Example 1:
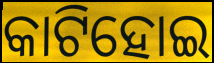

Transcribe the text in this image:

କାଟିହୋଇ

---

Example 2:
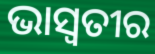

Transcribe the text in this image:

ଭାସ୍ୱତୀର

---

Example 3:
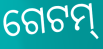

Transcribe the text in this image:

ଗେଟମ୍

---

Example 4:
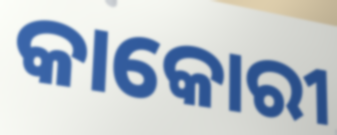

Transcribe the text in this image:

କାକୋରୀ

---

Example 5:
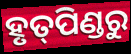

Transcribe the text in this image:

ହୃତ୍‌ପିଣ୍ଡରୁ